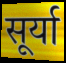
सूर्या